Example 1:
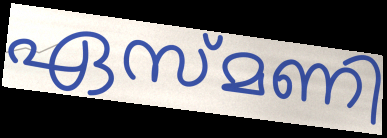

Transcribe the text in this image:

ഏസ്മണി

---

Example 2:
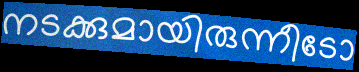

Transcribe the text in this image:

നടക്കുമായിരുന്നീടോ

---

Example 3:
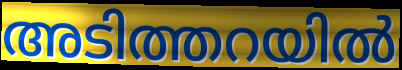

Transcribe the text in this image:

അടിത്തറയിൽ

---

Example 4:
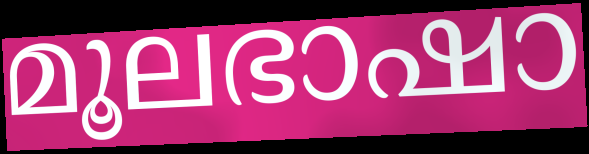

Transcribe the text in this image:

മൂലഭാഷാ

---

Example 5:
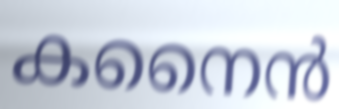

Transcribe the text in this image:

കനൈൻ